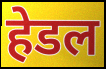
हेडल